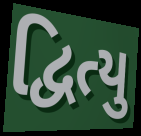
દ્વિત્યુ